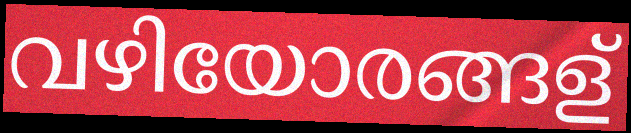
വഴിയോരങ്ങള്